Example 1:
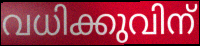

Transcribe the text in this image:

വധിക്കുവിന്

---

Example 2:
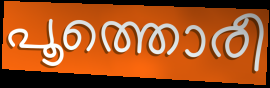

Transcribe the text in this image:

പൂത്തൊരീ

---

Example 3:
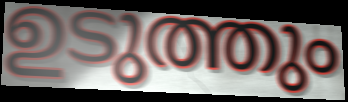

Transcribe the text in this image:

ഉടുത്തും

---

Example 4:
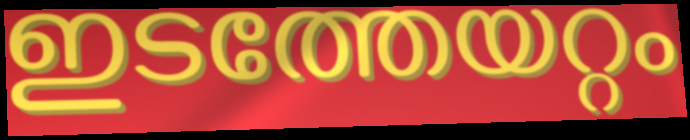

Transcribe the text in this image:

ഇടത്തേയറ്റം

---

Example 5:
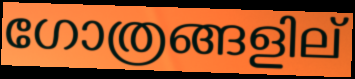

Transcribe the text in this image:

ഗോത്രങ്ങളില്